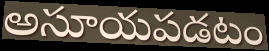
అసూయపడటం